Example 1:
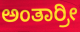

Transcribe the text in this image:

ಅಂತಾರ್ರೀ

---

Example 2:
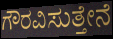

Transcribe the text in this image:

ಗೌರವಿಸುತ್ತೇನೆ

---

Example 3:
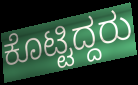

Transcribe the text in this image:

ಕೊಟ್ಟಿದ್ದರು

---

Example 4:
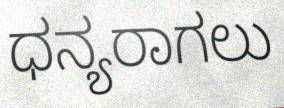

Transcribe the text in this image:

ಧನ್ಯರಾಗಲು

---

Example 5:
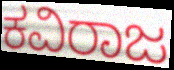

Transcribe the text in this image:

ಕವಿರಾಜ